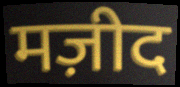
मज़ीद